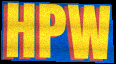
HPW